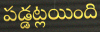
పడ్డట్లయింది